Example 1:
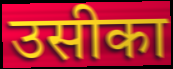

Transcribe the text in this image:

उसीका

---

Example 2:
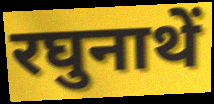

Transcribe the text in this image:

रघुनाथें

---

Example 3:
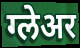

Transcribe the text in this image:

ग्लेअर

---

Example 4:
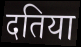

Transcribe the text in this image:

दतिया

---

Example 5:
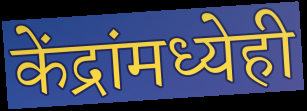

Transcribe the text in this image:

केंद्रांमध्येही